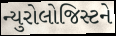
ન્યુરોલોજિસ્ટને